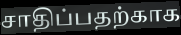
சாதிப்பதற்காக